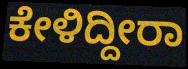
ಕೇಳಿದ್ದೀರಾ